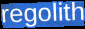
regolith